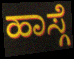
ಹಾಸ್ಗೆ